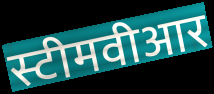
स्टीमवीआर